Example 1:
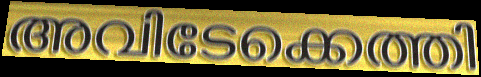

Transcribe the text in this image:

അവിടേക്കെത്തി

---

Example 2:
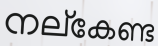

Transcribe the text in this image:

നല്കേണ്ട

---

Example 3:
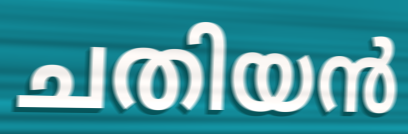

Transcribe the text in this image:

ചതിയൻ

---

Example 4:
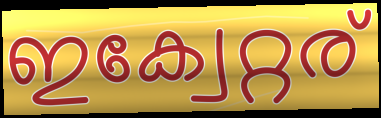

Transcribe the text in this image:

ഇക്വേറ്റര്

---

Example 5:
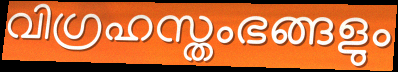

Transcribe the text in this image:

വിഗ്രഹസ്തംഭങ്ങളും